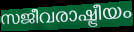
സജീവരാഷ്ട്രീയം